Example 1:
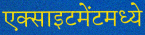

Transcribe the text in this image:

एक्साइटमेंटमध्ये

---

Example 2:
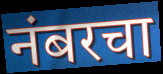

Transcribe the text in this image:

नंबरचा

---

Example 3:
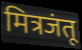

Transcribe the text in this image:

मित्रजंतू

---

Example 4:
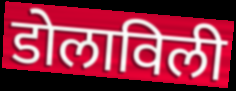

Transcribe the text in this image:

डोलाविली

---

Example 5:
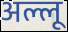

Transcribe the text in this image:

अल्लू